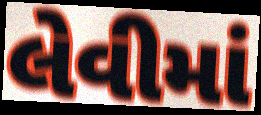
લેવીમાં